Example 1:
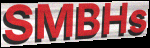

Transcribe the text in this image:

SMBHs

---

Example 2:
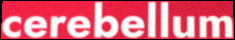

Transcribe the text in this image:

cerebellum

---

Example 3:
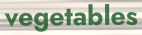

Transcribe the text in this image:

vegetables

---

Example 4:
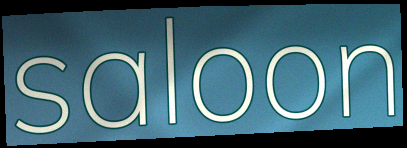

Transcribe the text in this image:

saloon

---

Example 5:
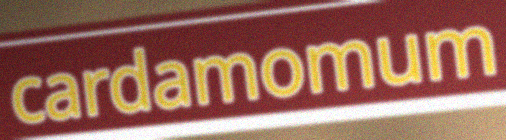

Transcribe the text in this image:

cardamomum